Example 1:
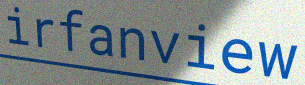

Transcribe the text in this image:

irfanview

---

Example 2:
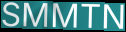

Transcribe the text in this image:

SMMTN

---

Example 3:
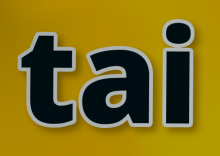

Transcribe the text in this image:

tai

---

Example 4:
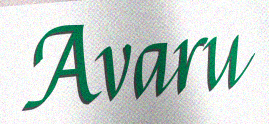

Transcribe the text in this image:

Avaru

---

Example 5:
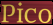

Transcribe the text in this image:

Pico